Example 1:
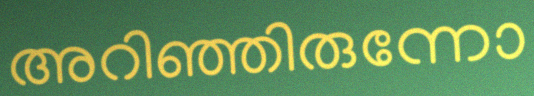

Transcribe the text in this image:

അറിഞ്ഞിരുന്നോ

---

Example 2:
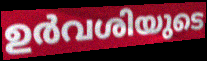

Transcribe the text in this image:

ഉർവശിയുടെ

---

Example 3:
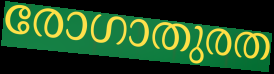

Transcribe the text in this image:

രോഗാതുരത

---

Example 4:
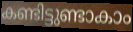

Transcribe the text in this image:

കണ്ടിട്ടുണ്ടാകാം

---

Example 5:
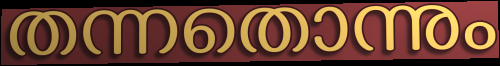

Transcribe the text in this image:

തന്നതൊന്നും